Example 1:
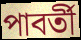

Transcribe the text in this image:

পাবর্তী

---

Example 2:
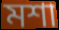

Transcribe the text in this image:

মশা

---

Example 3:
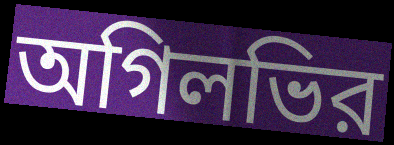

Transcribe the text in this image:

অগিলভির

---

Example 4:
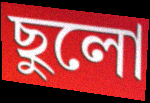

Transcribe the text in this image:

ছুলো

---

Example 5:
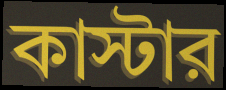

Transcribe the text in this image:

কাস্টার